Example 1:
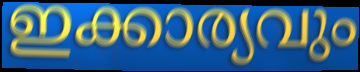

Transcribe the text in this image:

ഇക്കാര്യവും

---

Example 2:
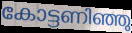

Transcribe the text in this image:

കോട്ടണിഞ്ഞു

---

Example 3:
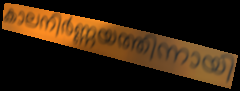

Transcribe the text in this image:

കാലനിർണ്ണയത്തിന്നായി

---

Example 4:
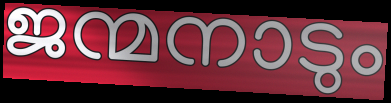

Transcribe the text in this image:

ജന്മനാടും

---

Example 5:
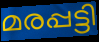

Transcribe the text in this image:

മരപ്പട്ടി